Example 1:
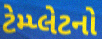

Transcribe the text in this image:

ટેમ્પ્લેટનો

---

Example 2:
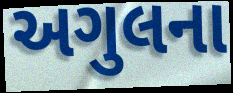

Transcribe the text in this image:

અગુલના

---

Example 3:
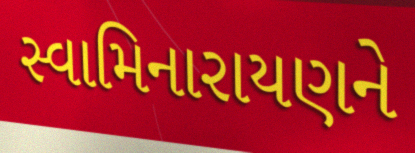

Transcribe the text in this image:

સ્વામિનારાયણને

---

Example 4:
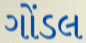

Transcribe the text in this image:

ગોંડલ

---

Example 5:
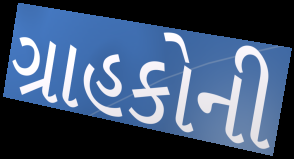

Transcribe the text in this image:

ગ્રાહકોની